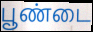
பூண்டை